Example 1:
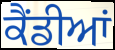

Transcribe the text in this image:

ਕੈਂਡੀਆਂ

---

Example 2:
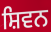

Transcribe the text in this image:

ਸ਼ਿਵਨ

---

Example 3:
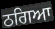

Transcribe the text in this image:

ਠਗਿਆ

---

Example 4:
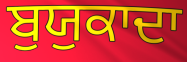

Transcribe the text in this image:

ਬੁਯੁਕਾਦਾ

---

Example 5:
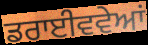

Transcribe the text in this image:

ਡਰਾਈਵਵੇਆਂ